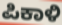
ಪಿಕಾಳಿ